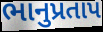
ભાનુપ્રતાપ